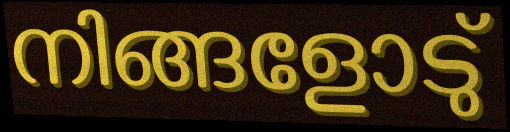
നിങ്ങളോടു്